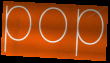
pop